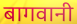
बागवानी